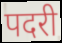
पदरी